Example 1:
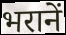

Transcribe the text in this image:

भरानें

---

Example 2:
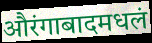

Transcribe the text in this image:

औरंगाबादमधलं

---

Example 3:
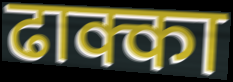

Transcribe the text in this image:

ढाक्का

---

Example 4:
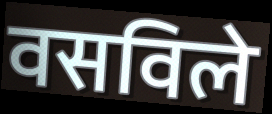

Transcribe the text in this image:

वसविले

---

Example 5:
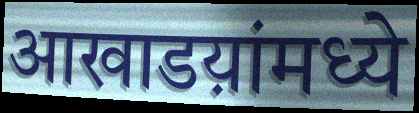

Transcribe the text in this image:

आखाडय़ांमध्ये